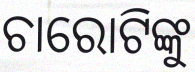
ଚାରୋଟିଙ୍କୁ